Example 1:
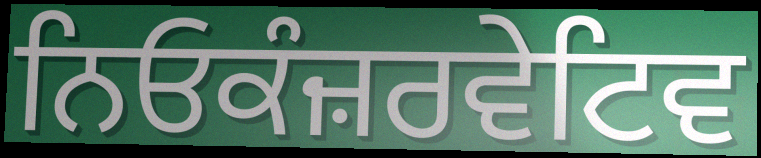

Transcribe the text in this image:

ਨਿਓਕੰਜ਼ਰਵੇਟਿਵ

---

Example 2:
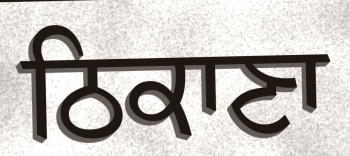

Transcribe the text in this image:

ਠਿਕਾਣਾ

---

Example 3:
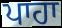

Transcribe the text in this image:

ਪਾਹਾ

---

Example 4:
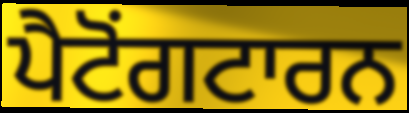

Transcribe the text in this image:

ਪੈਟੋਂਗਟਾਰਨ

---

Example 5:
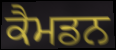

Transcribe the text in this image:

ਕੈਮਡਨ